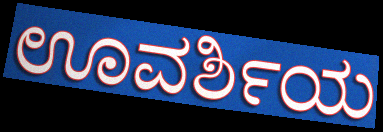
ಊವರ್ಶಿಯ